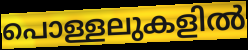
പൊള്ളലുകളിൽ